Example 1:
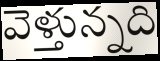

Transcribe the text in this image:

వెళ్తున్నది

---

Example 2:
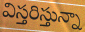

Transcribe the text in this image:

విస్తరిస్తున్నా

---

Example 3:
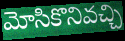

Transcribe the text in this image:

మోసికొనివచ్చి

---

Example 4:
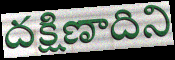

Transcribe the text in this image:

దక్షిణాదిని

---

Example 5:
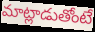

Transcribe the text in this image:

మాట్లాడుతోంటే